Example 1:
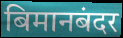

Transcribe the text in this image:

बिमानबंदर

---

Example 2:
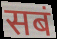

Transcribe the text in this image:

सबं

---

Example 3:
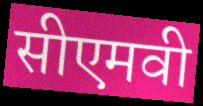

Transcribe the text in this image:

सीएमवी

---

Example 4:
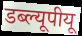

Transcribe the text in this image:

डब्ल्यूपीयू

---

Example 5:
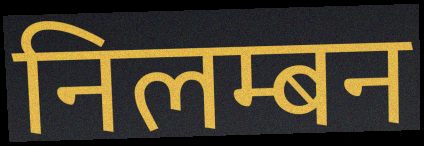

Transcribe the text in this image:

निलम्‍बन